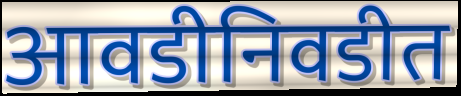
आवडीनिवडीत